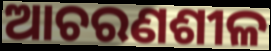
ଆଚରଣଶୀଳ